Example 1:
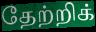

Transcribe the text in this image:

தேற்றிக்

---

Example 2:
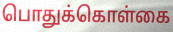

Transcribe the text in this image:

பொதுக்கொள்கை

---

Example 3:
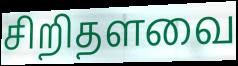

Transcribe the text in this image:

சிறிதளவை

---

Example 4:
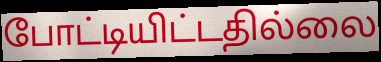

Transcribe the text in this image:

போட்டியிட்டதில்லை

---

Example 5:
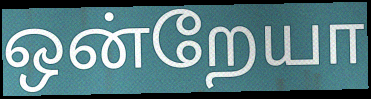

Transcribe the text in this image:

ஒன்றேயா